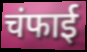
चंफाई